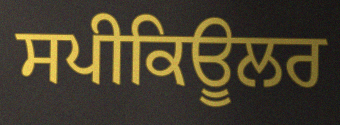
ਸਪੀਕਿਊਲਰ